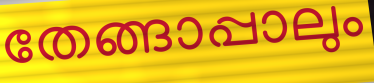
തേങ്ങാപ്പാലും